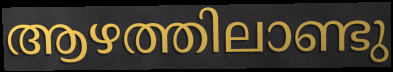
ആഴത്തിലാണ്ടു